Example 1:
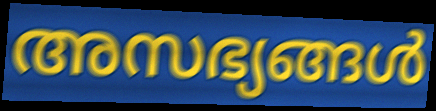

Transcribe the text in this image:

അസഭ്യങ്ങൾ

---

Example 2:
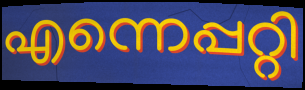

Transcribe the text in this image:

എന്നെപ്പറ്റി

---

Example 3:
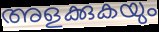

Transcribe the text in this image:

അളക്കുകയും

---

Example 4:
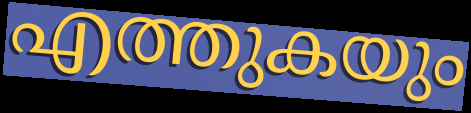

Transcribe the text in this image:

എത്തുകയും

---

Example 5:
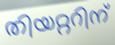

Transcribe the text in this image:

തിയറ്ററിന്